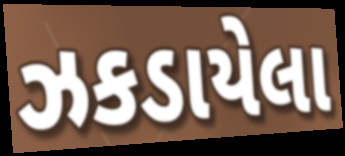
ઝકડાયેલા